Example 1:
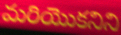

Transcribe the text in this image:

మరియొకనిని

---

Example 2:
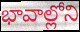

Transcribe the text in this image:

భావాల్లోని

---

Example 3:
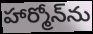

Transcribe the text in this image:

హార్మోన్‌ను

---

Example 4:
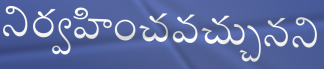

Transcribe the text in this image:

నిర్వహించవచ్చునని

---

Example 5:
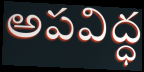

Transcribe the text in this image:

అపవిద్ధ